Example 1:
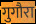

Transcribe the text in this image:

गुगौरा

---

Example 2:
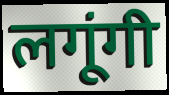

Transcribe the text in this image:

लगूंगी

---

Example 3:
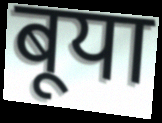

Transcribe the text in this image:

बूया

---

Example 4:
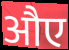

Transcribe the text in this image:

औए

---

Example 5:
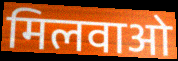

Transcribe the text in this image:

मिलवाओ